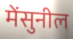
मेंसुनील